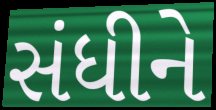
સંધીને